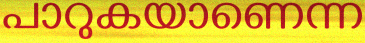
പാറുകയാണെന്ന